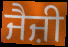
ਜੈਜ਼ੀ